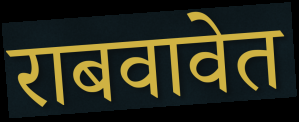
राबवावेत